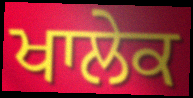
ਖਾਲੇਕ